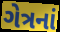
ગેત્રનાં